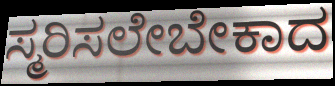
ಸ್ಮರಿಸಲೇಬೇಕಾದ